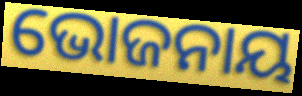
ଭୋଜନାୟ